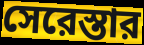
সেরেস্তার